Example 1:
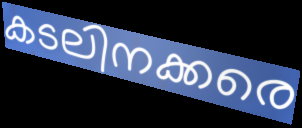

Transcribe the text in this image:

കടലിനക്കരെ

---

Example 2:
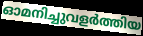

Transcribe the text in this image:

ഓമനിച്ചുവളർത്തിയ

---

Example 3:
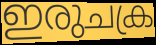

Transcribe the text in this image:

ഇരുചക്ര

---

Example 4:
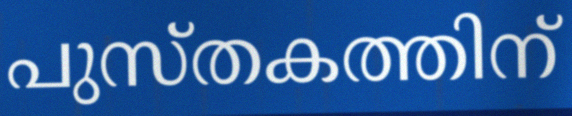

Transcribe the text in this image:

പുസ്തകത്തിന്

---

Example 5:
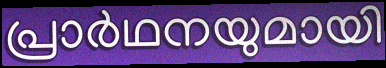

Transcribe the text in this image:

പ്രാർഥനയുമായി